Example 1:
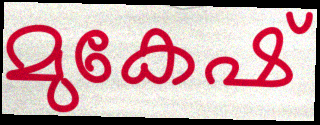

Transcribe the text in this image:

മുകേഷ്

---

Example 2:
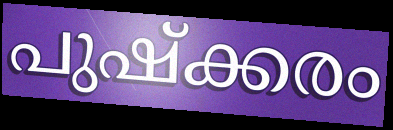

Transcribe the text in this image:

പുഷ്ക്കരം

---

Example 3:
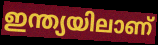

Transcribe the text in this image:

ഇന്ത്യയിലാണ്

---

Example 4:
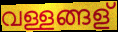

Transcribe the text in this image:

വള്ളങ്ങള്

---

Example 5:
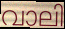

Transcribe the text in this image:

വാലി